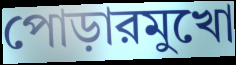
পোড়ারমুখো